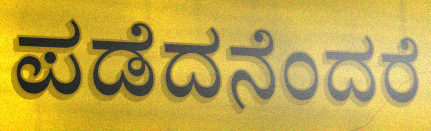
ಪಡೆದನೆಂದರೆ